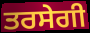
ਤਰਸੇਗੀ